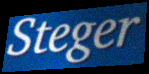
Steger